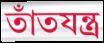
তাঁতযন্ত্র